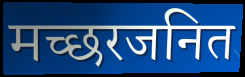
मच्छरजनित